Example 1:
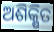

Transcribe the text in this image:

ଅଶିକ୍ଷିତ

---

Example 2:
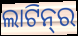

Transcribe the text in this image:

ଲାଟିନ୍‌ର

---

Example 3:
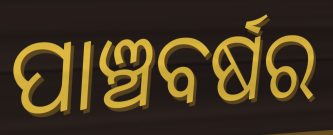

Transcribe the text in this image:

ପାଞ୍ଚବର୍ଷର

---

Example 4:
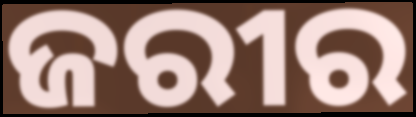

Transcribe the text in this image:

ଜରୀର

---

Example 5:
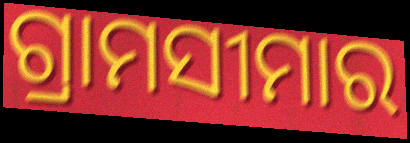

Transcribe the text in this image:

ଗ୍ରାମସୀମାର